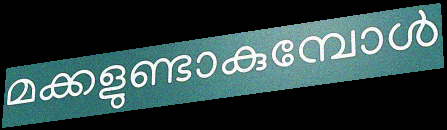
മക്കളുണ്ടാകുമ്പോൾ